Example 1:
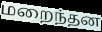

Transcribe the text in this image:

மறைந்தன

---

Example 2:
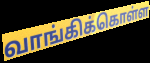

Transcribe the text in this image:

வாங்கிக்கொள்ள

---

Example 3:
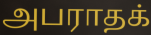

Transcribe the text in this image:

அபராதக்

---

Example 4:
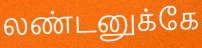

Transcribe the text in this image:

லண்டனுக்கே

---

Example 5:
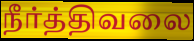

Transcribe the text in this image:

நீர்த்திவலை